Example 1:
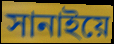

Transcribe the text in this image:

সানাইয়ে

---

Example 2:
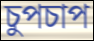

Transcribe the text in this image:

চুপচাপ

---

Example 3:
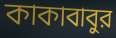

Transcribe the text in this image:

কাকাবাবুর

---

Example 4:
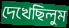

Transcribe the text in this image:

দেখেছিলুম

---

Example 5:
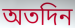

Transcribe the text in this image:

অতদিন